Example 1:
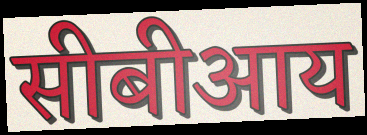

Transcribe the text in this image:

सीबीआय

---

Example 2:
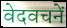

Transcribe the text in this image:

वेदवचनें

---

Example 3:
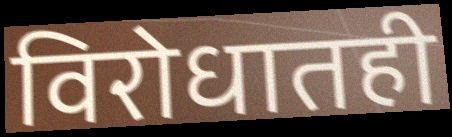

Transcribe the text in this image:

विरोधातही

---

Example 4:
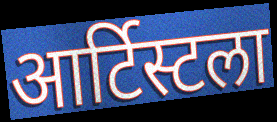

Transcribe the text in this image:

आर्टिस्टला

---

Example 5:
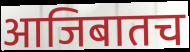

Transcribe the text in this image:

आजिबातच